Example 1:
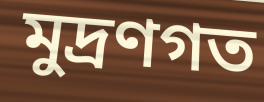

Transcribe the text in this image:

মুদ্রণগত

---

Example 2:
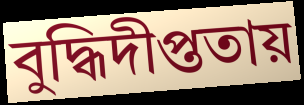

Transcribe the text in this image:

বুদ্ধিদীপ্ততায়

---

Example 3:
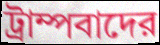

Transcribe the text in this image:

ট্রাম্পবাদের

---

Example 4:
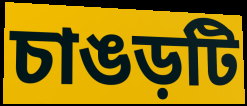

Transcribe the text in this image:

চাঙড়টি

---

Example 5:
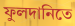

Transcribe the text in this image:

ফুলদানিতে